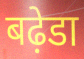
बढ़ेडा